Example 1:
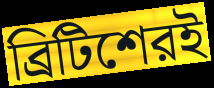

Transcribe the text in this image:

ব্রিটিশেরই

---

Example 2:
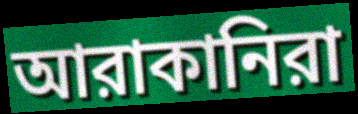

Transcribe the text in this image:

আরাকানিরা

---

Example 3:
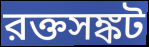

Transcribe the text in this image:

রক্তসঙ্কট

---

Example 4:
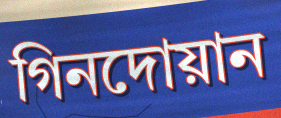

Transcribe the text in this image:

গিনদোয়ান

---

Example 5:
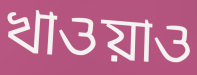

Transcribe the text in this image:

খাওয়াও